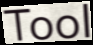
Tool